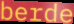
berde